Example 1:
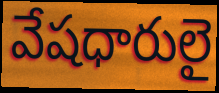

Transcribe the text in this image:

వేషధారులై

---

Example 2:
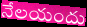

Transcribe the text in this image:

నేలయందు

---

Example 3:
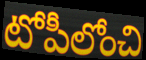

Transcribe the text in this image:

టోపీలోంచి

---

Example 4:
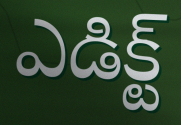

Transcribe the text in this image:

ఎడిక్ట్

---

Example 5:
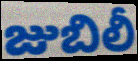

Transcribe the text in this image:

జుబిలీ